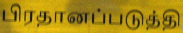
பிரதானப்படுத்தி